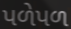
પળેપળ